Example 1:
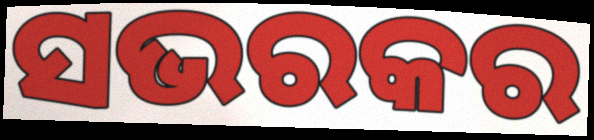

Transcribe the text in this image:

ସଭରକର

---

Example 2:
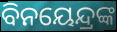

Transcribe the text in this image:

ବିନୟେନ୍ଦ୍ରଙ୍କ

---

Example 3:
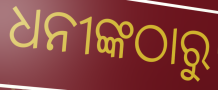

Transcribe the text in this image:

ଧନୀଙ୍କଠାରୁ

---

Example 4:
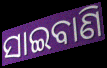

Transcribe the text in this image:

ସାଇବାଣି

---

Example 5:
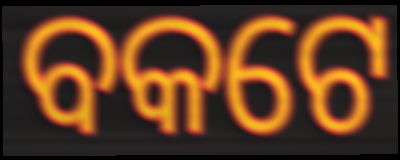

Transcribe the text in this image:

ବକଟେ